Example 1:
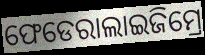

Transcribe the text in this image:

ଫେଡେରାଲାଇଜିମ୍ରେ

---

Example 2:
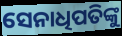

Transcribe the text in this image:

ସେନାଧିପତିଙ୍କୁ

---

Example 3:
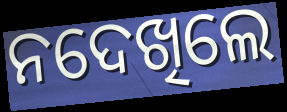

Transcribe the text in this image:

ନଦେଖିଲେ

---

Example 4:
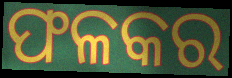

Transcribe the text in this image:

ଫଳକର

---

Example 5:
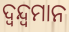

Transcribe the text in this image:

ଦ୍ଵନ୍ଦ୍ଵମାନ